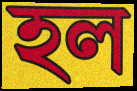
হল